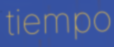
tiempo